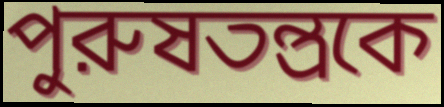
পুরুষতন্ত্রকে